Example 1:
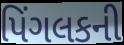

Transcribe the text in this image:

પિંગલકની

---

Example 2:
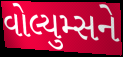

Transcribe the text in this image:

વોલ્યુમ્સને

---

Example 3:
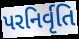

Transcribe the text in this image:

પરનિર્વૃતિ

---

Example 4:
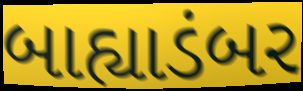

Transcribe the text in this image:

બાહ્યાડંબર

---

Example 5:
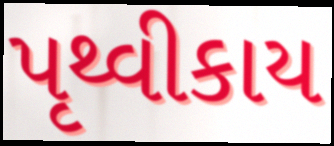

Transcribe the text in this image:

પૃથ્વીકાય